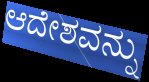
ಆದೇಶವನ್ನು